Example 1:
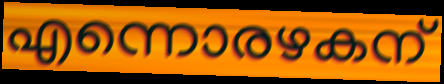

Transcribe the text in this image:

എന്നൊരഴകന്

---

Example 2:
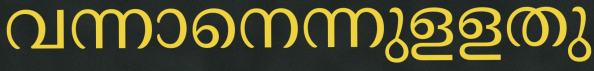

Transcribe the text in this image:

വന്നാനെന്നുളളതു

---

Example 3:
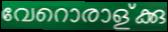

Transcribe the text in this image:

വേറൊരാള്ക്കു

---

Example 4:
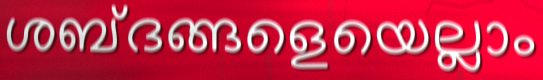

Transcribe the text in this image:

ശബ്ദങ്ങളെയെല്ലാം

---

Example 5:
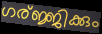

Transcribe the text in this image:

ഗര്ജ്ജിക്കും